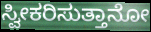
ಸ್ವೀಕರಿಸುತ್ತಾನೋ